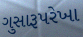
ગુસારૂપરેખા